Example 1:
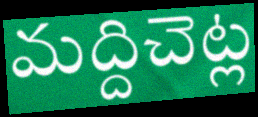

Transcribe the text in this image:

మద్దిచెట్ల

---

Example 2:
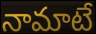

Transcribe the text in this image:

నామాటే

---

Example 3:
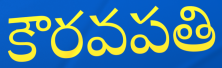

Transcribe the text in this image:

కౌరవపతి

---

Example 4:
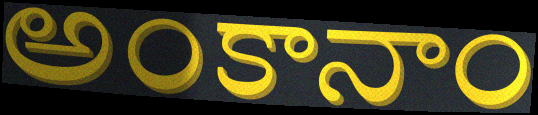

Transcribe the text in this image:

అంకానాం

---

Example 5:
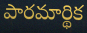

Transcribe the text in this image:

పారమార్థిక